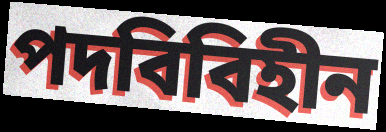
পদবিবিহীন